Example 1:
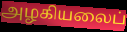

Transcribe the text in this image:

அழகியலைப்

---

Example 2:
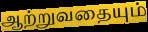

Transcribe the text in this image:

ஆற்றுவதையும்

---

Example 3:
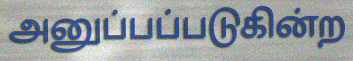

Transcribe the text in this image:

அனுப்பப்படுகின்ற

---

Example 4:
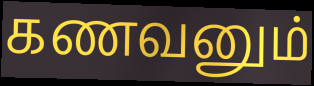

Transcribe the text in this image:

கணவனும்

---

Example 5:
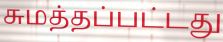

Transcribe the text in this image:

சுமத்தப்பட்டது